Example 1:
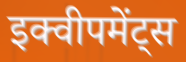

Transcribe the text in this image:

इक्वीपमेंट्स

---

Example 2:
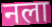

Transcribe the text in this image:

नला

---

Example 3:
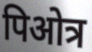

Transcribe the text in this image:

पिओत्र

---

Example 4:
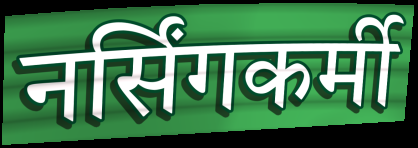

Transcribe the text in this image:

नर्सिंगकर्मी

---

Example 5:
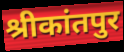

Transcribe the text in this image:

श्रीकांतपुर